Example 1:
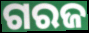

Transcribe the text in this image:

ଗରଜ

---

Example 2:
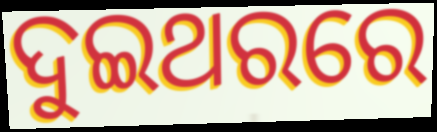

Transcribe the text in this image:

ଦୁଇଥରରେ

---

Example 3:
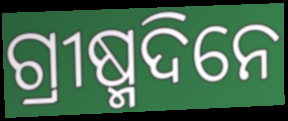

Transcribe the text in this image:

ଗ୍ରୀଷ୍ମଦିନେ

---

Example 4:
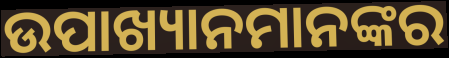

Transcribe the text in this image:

ଉପାଖ୍ୟାନମାନଙ୍କର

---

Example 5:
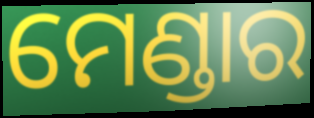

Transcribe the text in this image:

ମେଣ୍ଡାର